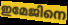
ഇമേജിനെ